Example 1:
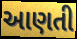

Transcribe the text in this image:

આણતી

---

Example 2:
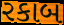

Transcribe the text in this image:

રકાબ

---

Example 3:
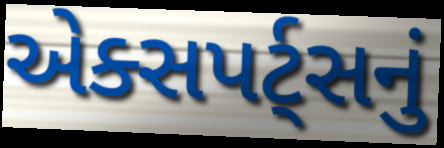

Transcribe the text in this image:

એક્સપર્ટ્સનું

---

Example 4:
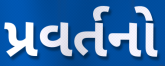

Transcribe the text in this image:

પ્રવર્તનો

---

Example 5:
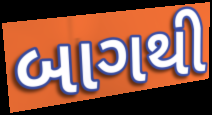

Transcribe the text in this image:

બાગથી